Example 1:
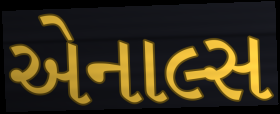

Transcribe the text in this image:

એનાલ્સ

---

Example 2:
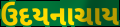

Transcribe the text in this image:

ઉદયનાચાય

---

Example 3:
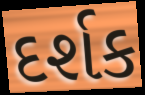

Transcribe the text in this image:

દર્શક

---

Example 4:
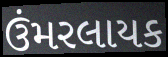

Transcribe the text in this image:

ઉંમરલાયક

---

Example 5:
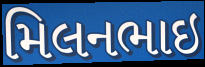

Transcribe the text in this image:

મિલનભાઇ